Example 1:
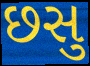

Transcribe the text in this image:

છસુ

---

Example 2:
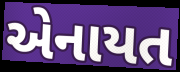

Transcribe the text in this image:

એનાયત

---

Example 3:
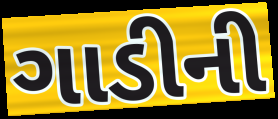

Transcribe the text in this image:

ગાડીની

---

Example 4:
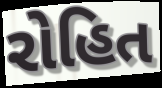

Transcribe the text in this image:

રોહિત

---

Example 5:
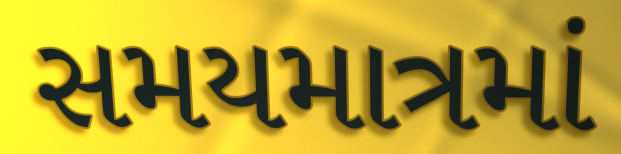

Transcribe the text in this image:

સમયમાત્રમાં